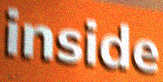
inside